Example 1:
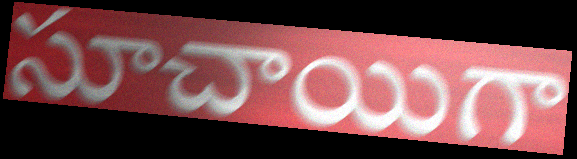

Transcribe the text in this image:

సూచాయిగా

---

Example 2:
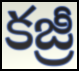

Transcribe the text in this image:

కజ్రీ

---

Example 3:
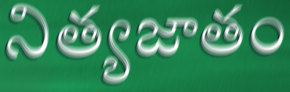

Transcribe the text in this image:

నిత్యజాతం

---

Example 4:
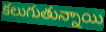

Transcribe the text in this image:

కలుగుతున్నాయి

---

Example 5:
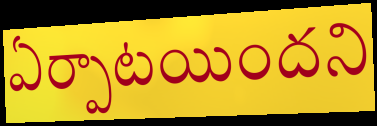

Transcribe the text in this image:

ఏర్పాటయిందని